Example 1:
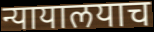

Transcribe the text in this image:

न्यायालयाच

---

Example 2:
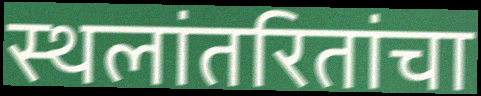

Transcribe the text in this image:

स्थलांतरितांचा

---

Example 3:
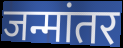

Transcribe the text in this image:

जन्मांतर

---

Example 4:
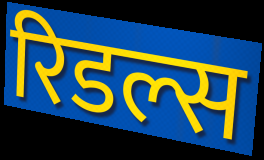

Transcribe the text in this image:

रिडल्स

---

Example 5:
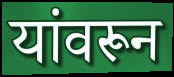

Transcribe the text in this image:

यांवरून